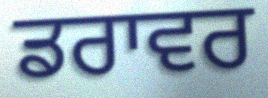
ਡਰਾਵਰ